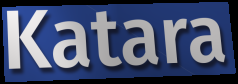
Katara